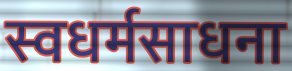
स्वधर्मसाधना